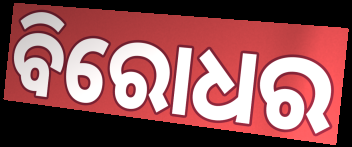
ବିରୋଧର